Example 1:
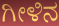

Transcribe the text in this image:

ಗೀಳಿನ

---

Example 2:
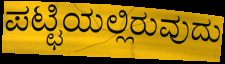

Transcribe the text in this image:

ಪಟ್ಟಿಯಲ್ಲಿರುವುದು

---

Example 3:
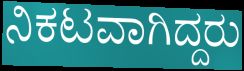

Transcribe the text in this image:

ನಿಕಟವಾಗಿದ್ದರು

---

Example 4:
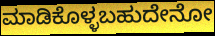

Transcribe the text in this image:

ಮಾಡಿಕೊಳ್ಳಬಹುದೇನೋ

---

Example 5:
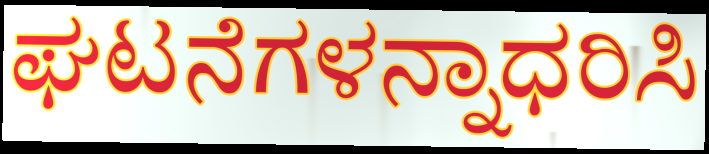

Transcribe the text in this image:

ಘಟನೆಗಳನ್ನಾಧರಿಸಿ